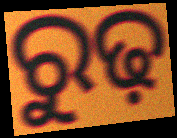
ରୁଢ଼